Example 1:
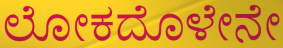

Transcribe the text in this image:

ಲೋಕದೊಳೇನೇ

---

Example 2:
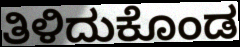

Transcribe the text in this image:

ತಿಳಿದುಕೊಂಡ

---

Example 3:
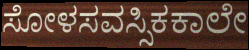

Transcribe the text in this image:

ಸೋಳಸವಸ್ಸಿಕಕಾಲೇ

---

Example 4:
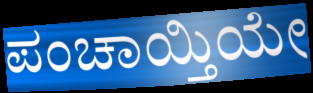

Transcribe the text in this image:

ಪಂಚಾಯ್ತಿಯೇ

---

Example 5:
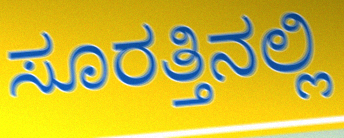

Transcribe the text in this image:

ಸೂರತ್ತಿನಲ್ಲಿ